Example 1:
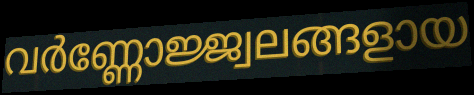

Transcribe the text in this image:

വർണ്ണോജ്ജ്വലങ്ങളായ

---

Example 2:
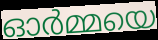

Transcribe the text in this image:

ഓർമ്മയെ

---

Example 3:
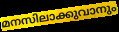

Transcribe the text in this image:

മനസിലാക്കുവാനും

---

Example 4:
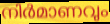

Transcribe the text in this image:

നിർമാണവും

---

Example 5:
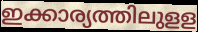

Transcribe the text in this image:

ഇക്കാര്യത്തിലുളള